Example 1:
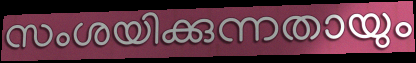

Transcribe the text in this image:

സംശയിക്കുന്നതായും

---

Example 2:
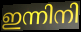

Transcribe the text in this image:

ഇന്നിനി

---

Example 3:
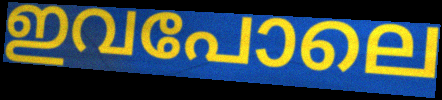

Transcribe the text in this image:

ഇവപോലെ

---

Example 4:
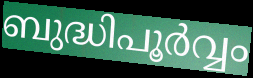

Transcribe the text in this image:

ബുദ്ധിപൂർവ്വം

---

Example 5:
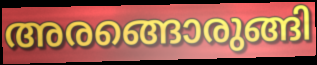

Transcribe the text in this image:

അരങ്ങൊരുങ്ങി